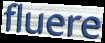
fluere